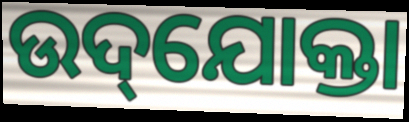
ଉଦ୍‌ଯୋକ୍ତା